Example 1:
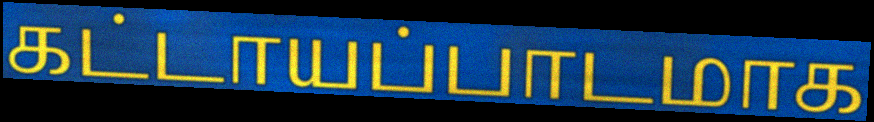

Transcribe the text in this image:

கட்டாயப்பாடமாக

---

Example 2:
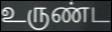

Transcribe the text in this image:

உருண்ட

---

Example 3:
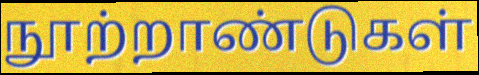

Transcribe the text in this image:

நூற்றாண்டுகள்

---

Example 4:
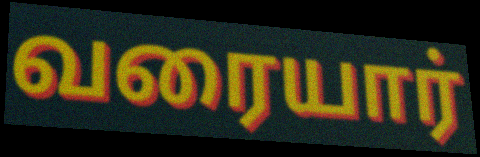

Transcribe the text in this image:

வரையார்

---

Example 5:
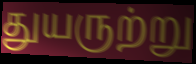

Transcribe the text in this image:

துயருற்று